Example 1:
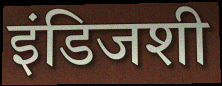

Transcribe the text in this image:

इंडिजशी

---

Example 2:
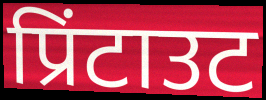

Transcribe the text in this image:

प्रिंटाउट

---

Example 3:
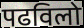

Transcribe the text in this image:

पढविलो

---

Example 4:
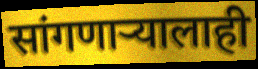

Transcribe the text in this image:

सांगणाऱ्यालाही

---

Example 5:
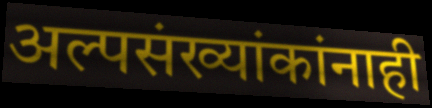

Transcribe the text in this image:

अल्पसंख्यांकांनाही